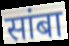
सांबा